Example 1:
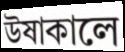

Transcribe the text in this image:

উষাকালে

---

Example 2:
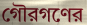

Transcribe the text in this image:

গৌরগণের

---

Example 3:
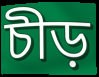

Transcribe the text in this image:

চীড়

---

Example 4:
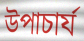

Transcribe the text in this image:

উপাচার্য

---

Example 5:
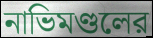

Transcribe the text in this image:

নাভিমণ্ডলের